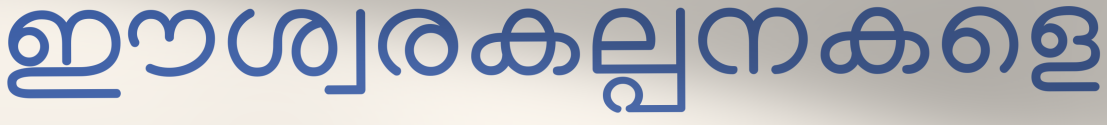
ഈശ്വരകല്പനകളെ